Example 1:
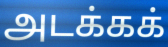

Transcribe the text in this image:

அடக்கக்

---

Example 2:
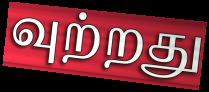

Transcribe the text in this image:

வுற்றது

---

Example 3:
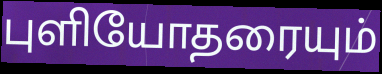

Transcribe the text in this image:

புளியோதரையும்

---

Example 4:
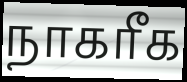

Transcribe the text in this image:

நாகரீக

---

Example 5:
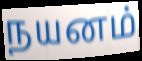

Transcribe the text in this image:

நயனம்